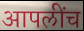
आपलींच